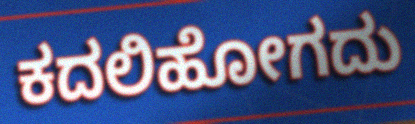
ಕದಲಿಹೋಗದು